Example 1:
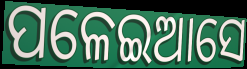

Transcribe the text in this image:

ପଳେଇଆସେ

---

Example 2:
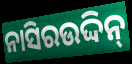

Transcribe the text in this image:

ନାସିରଉଦ୍ଦିନ୍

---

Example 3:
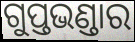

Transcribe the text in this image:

ଗୁପ୍ତଭଣ୍ଡାର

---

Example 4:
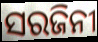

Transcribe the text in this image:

ସରଜିନୀ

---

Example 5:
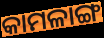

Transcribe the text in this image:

କାମଳାଙ୍ଗ